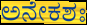
ಅನೇಕಶಃ